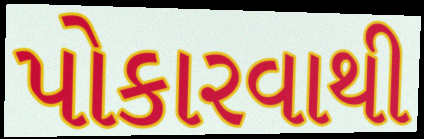
પોકારવાથી